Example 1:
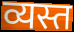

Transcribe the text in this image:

व्‍यस्‍त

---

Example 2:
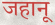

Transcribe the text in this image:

जहानू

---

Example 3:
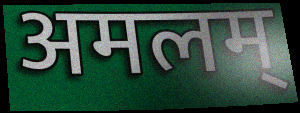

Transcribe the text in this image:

अमलम्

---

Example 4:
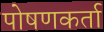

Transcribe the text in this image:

पोषणकर्ता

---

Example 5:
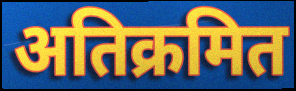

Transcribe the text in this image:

अतिक्रमित